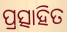
ପ୍ରତ୍ସାହିତ